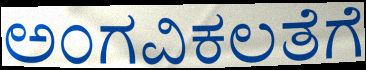
ಅಂಗವಿಕಲತೆಗೆ